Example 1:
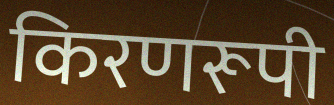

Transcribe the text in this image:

किरणरूपी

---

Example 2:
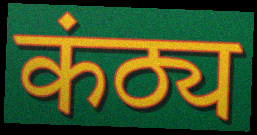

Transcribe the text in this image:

कंठ्य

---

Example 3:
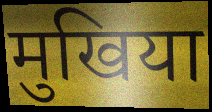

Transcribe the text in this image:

मुखिया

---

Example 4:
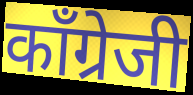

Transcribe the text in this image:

काँग्रेजी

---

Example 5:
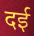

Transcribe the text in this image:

दई